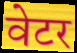
वेटर